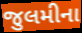
જુલમીના